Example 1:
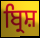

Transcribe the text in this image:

ਬ੍ਰਿਸ਼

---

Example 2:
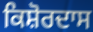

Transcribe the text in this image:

ਕਿਸ਼ੋਰਦਾਸ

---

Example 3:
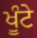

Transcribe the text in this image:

ਖੂੰਟੇ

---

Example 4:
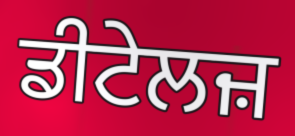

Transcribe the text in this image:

ਡੀਟੇਲਜ਼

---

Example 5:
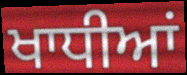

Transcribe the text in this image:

ਖਾਧੀਆਂ